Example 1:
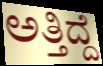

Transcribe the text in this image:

ಅತ್ತಿದ್ದೆ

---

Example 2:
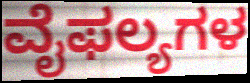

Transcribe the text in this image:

ವೈಫಲ್ಯಗಳ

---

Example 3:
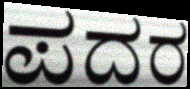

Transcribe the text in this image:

ಪದರ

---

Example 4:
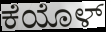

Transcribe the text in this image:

ಕೆಯೊಳ್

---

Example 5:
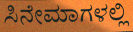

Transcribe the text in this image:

ಸಿನೇಮಾಗಳಲ್ಲಿ